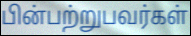
பின்பற்றுபவர்கள்